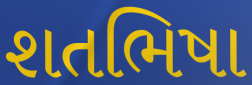
શતભિષા